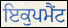
ਇਕੁਪਮੈਂਟ